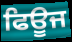
ਫਿਊਜ